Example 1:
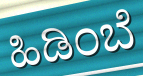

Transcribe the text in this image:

ಹಿಡಿಂಬೆ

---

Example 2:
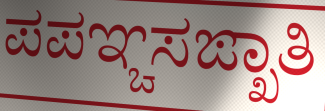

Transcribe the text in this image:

ಪಪಞ್ಚಸಙ್ಖಾತಿ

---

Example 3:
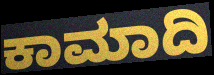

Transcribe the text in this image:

ಕಾಮಾದಿ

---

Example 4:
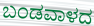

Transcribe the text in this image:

ಬಂಡವಾಳದ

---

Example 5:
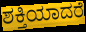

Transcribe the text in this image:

ಶಕ್ತಿಯಾದರೆ